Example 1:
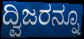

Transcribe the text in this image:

ದ್ವಿಜರನ್ನೂ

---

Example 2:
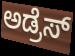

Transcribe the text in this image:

ಅಡ್ರೆಸ್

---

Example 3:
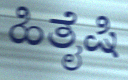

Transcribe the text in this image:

ಹಿತೈಷಿ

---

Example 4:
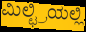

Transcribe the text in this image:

ಮಿಲ್ಟ್ರಿಯಲ್ಲಿ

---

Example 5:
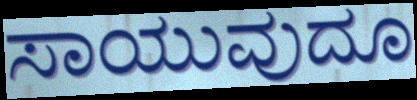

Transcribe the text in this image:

ಸಾಯುವುದೂ